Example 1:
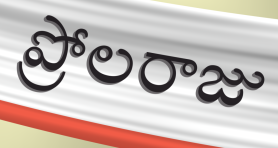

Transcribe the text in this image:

ప్రోలరాజు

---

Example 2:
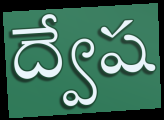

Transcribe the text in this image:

ద్వేష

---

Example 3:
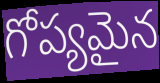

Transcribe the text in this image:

గోప్యమైన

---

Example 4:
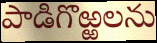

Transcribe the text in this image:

పాడిగొఱ్ఱలను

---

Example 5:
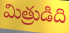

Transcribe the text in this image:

మిత్రుడిది